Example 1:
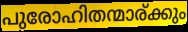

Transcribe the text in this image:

പുരോഹിതന്മാര്ക്കും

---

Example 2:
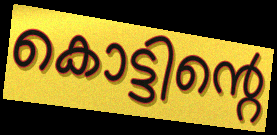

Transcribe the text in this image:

കൊട്ടിന്റെ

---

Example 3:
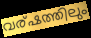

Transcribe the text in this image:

വര്ഷത്തിലും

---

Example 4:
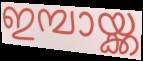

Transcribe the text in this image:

ഇമ്പായ്ക്ക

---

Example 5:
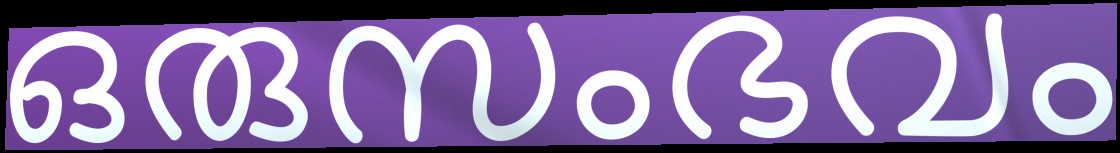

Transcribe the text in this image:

ഒരുസംഭവം